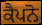
ਕੈਪਨੋ